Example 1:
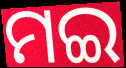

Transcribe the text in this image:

ମଇ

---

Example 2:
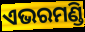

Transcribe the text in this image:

ଏଭରମଣ୍ଡି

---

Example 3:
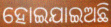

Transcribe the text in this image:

ହୋଇଯାଇଅଛି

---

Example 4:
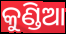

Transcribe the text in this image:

କୁଣ୍ଡିଆ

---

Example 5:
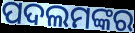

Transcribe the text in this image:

ପଦଲମଙ୍କର